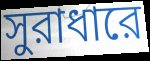
সুরাধারে